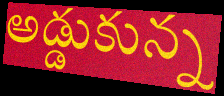
అడ్డుకున్న